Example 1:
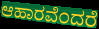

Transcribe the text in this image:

ಆಹಾರವೆಂದರೆ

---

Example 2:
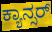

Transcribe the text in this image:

ಕ್ಯಾನ್ಸರ್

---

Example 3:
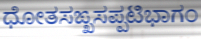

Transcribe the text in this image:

ಧೋತಸಙ್ಖಸಪ್ಪಟಿಭಾಗಂ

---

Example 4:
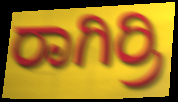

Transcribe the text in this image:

ರಾಗಿರ್ರಿ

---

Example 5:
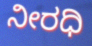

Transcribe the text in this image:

ನೀರಧಿ